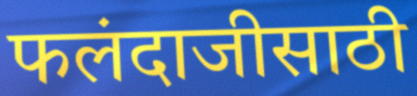
फलंदाजीसाठी